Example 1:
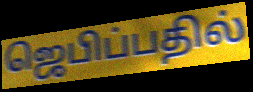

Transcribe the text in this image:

ஜெபிப்பதில்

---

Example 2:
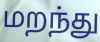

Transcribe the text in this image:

மறந்து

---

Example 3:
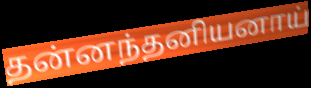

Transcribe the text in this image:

தன்னந்தனியனாய்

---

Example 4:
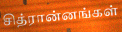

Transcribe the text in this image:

சித்ரான்னங்கள்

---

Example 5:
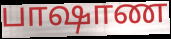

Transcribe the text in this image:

பாஷாண